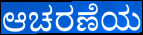
ಆಚರಣೆಯ